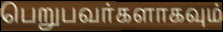
பெறுபவர்களாகவும்